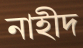
নাহীদ